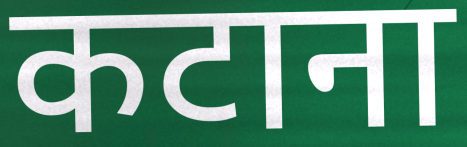
कटाना